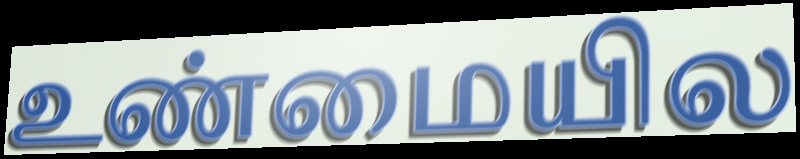
உண்மையில